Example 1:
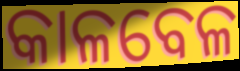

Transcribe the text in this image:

କାଳବେଳ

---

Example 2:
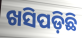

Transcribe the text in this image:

ଖସିପଡ଼ିଛି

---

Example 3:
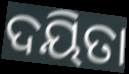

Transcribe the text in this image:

ଦୟିତା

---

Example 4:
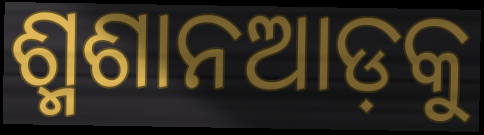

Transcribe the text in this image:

ଶ୍ମଶାନଆଡ଼କୁ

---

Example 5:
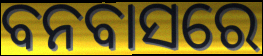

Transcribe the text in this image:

ବନବାସରେ